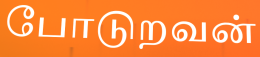
போடுறவன்